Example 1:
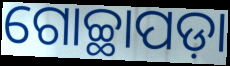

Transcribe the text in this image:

ଗୋଚ୍ଛାପଡ଼ା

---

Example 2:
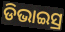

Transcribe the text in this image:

ଡିଭାଇସ୍ର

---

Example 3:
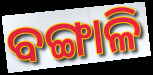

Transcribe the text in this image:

ବଙ୍ଗାଳି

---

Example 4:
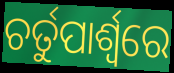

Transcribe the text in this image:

ଚର୍ତୁପାର୍ଶ୍ବରେ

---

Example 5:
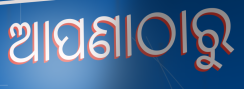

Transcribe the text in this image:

ଆପଣାଠାରୁ